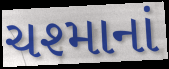
ચશ્માનાં